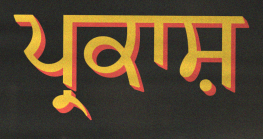
ਪ੍ਰਕਾਸ਼